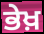
ਭੇਖ਼